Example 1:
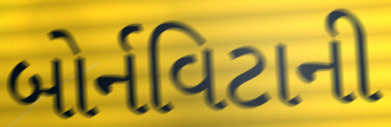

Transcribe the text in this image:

બોર્નવિટાની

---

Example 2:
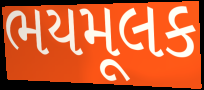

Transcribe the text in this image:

ભયમૂલક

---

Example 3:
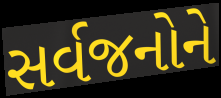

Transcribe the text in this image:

સર્વજનોને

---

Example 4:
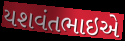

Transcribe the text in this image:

યશવંતભાઇએ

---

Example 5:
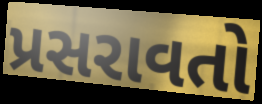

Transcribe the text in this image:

પ્રસરાવતો